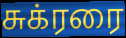
சுக்ரரை